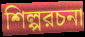
শিল্পরচনা